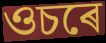
ওচৰে